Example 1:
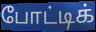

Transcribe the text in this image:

போட்டிக்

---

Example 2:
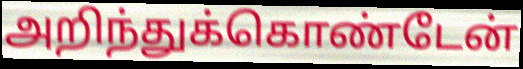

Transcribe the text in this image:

அறிந்துக்கொண்டேன்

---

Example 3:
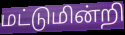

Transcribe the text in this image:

மட்டுமின்றி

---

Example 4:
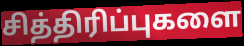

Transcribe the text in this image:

சித்திரிப்புகளை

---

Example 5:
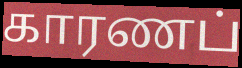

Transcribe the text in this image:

காரணப்